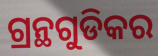
ଗ୍ରନ୍ଥଗୁଡିକର